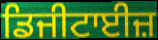
ਡਿਜੀਟਾਈਜ਼